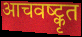
आचवष्ट्कृत